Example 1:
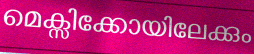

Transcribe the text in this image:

മെക്സിക്കോയിലേക്കും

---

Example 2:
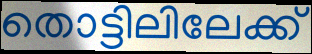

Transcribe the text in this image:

തൊട്ടിലിലേക്ക്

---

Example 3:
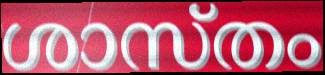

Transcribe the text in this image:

ശാസ്തം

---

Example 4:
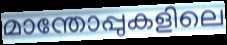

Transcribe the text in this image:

മാന്തോപ്പുകളിലെ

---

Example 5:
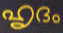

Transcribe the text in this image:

ഹൃദം